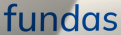
fundas